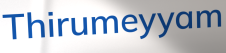
Thirumeyyam